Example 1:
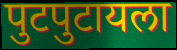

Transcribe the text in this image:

पुटपुटायला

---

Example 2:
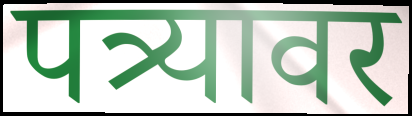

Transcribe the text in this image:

पत्र्यावर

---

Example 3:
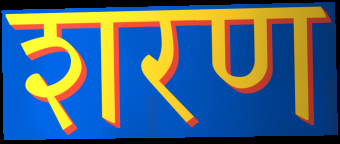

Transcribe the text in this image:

शरण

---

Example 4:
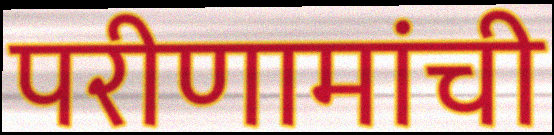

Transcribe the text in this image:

परीणामांची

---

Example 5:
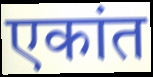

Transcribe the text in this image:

एकांत